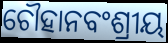
ଚୌହାନବଂଶ୍ରୀୟ